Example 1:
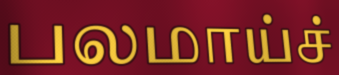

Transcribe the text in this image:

பலமாய்ச்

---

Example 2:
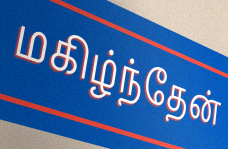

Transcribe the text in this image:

மகிழ்ந்தேன்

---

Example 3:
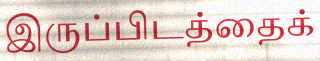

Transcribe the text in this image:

இருப்பிடத்தைக்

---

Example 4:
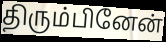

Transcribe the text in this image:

திரும்பினேன்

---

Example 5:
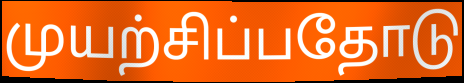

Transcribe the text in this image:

முயற்சிப்பதோடு